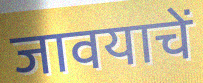
जावयाचें